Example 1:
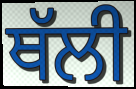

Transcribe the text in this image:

ਥੱਲੀ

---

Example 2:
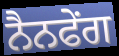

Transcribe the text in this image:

ਨੈਨਫੇਂਗ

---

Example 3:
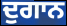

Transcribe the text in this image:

ਦੁਗਾਨ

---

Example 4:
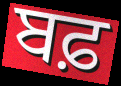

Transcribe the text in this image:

ਬਫ਼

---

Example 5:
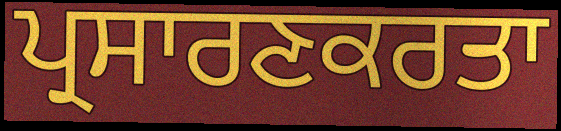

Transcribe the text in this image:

ਪ੍ਰਸਾਰਣਕਰਤਾ